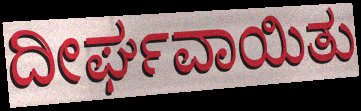
ದೀರ್ಘವಾಯಿತು